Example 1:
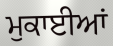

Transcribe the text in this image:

ਮੁਕਾਈਆਂ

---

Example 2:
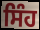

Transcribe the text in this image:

ਸਿੰਹ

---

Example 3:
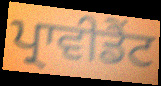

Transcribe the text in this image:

ਪ੍ਰਾਵੀਡੈਂਟ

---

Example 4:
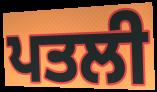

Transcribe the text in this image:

ਪਤਲੀ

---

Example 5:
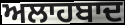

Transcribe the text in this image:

ਅਲਾਹਬਾਦ